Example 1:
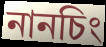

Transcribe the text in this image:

নানচিং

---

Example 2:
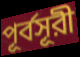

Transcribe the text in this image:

পূর্বসূরী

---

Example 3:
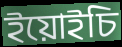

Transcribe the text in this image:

ইয়োইচি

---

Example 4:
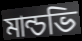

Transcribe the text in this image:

মান্ডভি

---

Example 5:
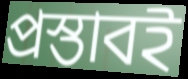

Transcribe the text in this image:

প্রস্তাবই